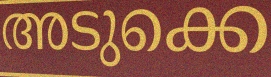
അടുക്കെ